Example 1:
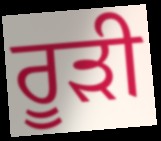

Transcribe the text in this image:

ਰੂੜੀ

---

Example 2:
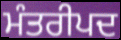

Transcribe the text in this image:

ਮੰਤਰੀਪਦ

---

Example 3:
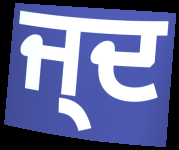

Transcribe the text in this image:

ਜ੍ਦ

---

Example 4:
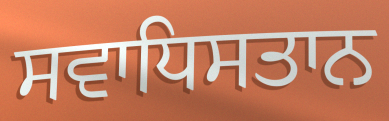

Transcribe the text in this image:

ਸਵਾਧਿਸਤਾਨ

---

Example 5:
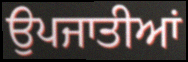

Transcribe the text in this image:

ਉਪਜਾਤੀਆਂ